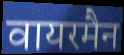
वायरमैन